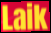
Laik